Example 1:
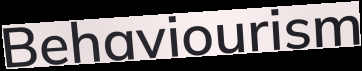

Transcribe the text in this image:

Behaviourism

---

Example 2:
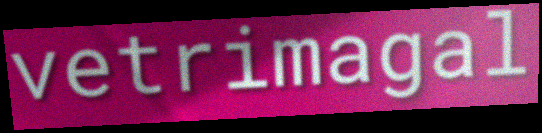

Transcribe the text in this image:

vetrimagal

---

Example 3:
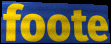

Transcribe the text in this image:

foote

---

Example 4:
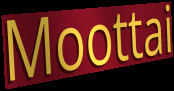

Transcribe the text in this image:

Moottai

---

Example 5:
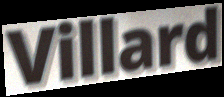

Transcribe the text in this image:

Villard